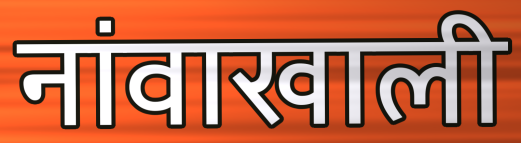
नांवाखाली